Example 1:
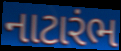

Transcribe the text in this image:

નાટારંભ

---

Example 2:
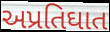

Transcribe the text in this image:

અપ્રતિઘાત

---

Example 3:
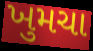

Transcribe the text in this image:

ખુમચા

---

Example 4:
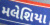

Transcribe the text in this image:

મલેશિયા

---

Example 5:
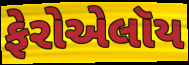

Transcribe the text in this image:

ફેરોએલૉય